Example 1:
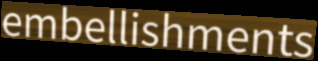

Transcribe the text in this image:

embellishments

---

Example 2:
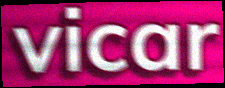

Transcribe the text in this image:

vicar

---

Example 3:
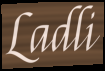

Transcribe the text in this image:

Ladli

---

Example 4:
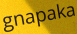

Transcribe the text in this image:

gnapaka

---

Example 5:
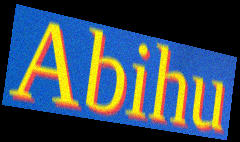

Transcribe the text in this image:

Abihu